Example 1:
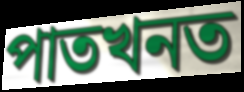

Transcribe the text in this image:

পাতখনত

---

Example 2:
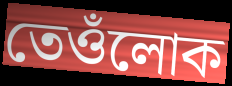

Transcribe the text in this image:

তেওঁলোক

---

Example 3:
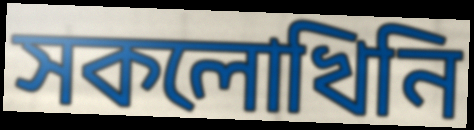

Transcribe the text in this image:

সকলোখিনি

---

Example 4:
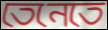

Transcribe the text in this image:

তেনেতে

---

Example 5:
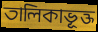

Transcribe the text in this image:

তালিকাভূক্ত